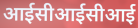
आईसीआईसीआई